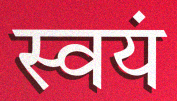
स्‍वयं